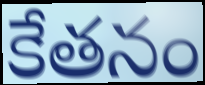
కేతనం